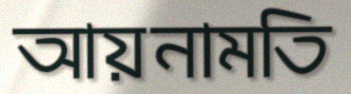
আয়নামতি